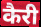
कैरी